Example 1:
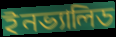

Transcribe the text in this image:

ইনভ্যালিড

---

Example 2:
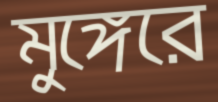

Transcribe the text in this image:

মুঙ্গেরে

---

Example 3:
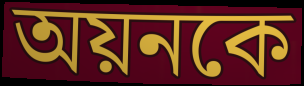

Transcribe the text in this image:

অয়নকে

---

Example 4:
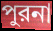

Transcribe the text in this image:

পুরনা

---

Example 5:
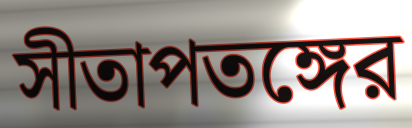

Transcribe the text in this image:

সীতাপতঙ্গের